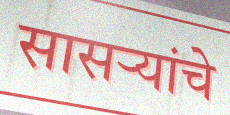
सासर्‍यांचे